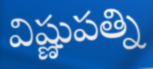
విష్ణుపత్ని